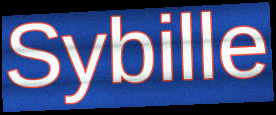
Sybille